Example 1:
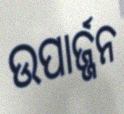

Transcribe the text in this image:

ଉପାର୍ଜ୍ଜନ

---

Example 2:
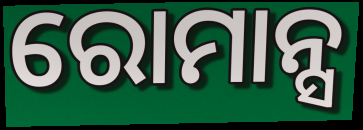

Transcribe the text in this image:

ରୋମାନ୍ସ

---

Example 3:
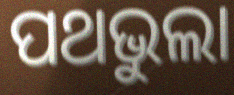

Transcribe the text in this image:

ପଥଭୁଲା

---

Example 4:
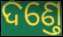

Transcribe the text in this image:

ଦଣ୍ତେ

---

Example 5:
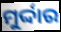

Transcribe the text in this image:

ମୁର୍ଦ୍ଦାର